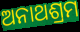
ଅନାଥଶ୍ରମ